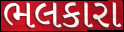
ભલકારા